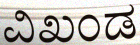
ವಿಖಂಡ